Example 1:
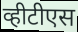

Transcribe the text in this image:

व्हीटीएस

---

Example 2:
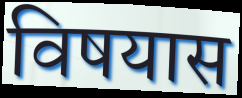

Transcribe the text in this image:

विषयास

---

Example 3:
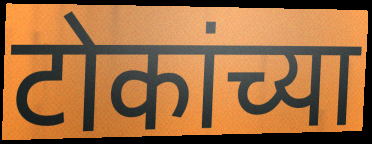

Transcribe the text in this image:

टोकांच्या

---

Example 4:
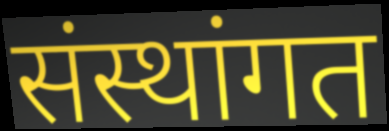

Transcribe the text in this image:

संस्थांगत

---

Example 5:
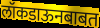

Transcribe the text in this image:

लॉकडाऊनबाबत